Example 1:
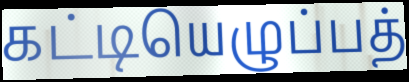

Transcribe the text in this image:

கட்டியெழுப்பத்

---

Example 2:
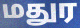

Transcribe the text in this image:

மதுர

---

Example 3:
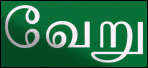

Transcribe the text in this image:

வேறு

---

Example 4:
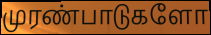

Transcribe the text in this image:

முரண்பாடுகளோ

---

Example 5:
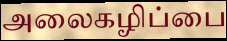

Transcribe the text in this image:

அலைகழிப்பை